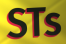
STs